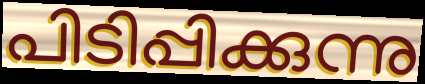
പിടിപ്പിക്കുന്നു